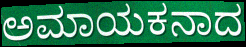
ಅಮಾಯಕನಾದ